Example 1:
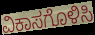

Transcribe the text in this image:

ವಿಕಾಸಗೊಳಿಸಿ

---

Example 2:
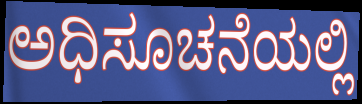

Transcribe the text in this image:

ಅಧಿಸೂಚನೆಯಲ್ಲಿ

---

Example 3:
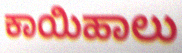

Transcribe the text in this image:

ಕಾಯಿಹಾಲು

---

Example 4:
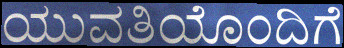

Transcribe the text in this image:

ಯುವತಿಯೊಂದಿಗೆ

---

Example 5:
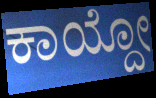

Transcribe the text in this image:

ಕಾಯ್ದೋ